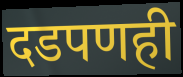
दडपणही